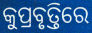
କୁପ୍ରବୃତ୍ତିରେ